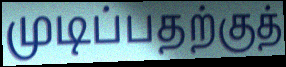
முடிப்பதற்குத்